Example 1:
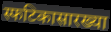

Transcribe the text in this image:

स्फटिकासारख्या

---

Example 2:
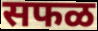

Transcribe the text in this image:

सफळ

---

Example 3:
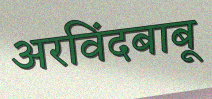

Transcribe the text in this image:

अरविंदबाबू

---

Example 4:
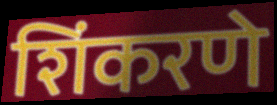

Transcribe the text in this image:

शिंकरणे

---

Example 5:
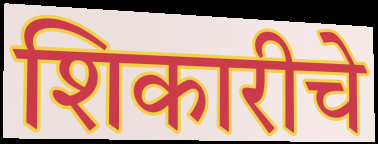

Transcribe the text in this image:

शिकारीचे